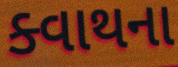
ક્વાથના